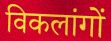
विकलांगों